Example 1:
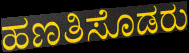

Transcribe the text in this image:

ಹಣತಿಸೊಡರು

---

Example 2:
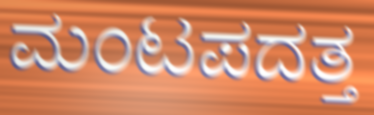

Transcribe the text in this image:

ಮಂಟಪದತ್ತ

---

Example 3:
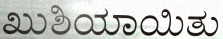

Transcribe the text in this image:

ಖುಶಿಯಾಯಿತು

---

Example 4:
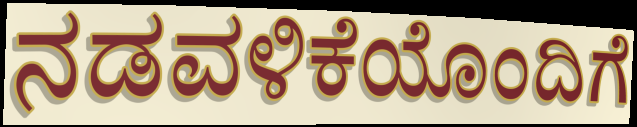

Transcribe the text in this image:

ನಡವಳಿಕೆಯೊಂದಿಗೆ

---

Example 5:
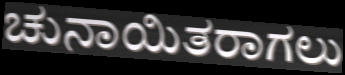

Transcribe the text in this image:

ಚುನಾಯಿತರಾಗಲು